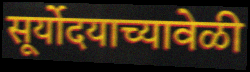
सूर्योदयाच्यावेळी